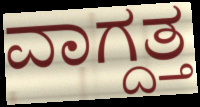
ವಾಗ್ದತ್ತ